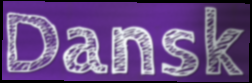
Dansk